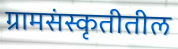
ग्रामसंस्कृतीतील